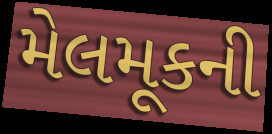
મેલમૂકની